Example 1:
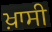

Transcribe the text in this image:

ਖ਼ਾਸੀ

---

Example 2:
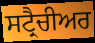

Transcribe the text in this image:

ਸਟ੍ਰੈਚੀਅਰ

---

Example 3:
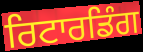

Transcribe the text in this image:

ਰਿਟਾਰਡਿੰਗ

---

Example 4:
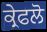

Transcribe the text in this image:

ਕ੍ਰੇਫਲੋ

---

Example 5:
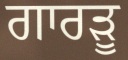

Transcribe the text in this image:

ਗਾਰੜੂ